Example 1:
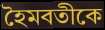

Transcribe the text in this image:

হৈমবতীকে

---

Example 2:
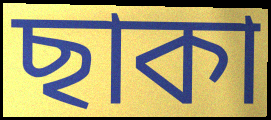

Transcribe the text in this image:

ছাকা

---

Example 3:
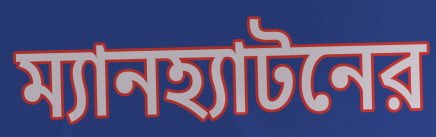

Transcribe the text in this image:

ম্যানহ্যাটনের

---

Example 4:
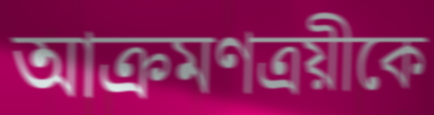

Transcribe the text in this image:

আক্রমণত্রয়ীকে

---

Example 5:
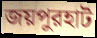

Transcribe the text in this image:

জয়পুরহাট